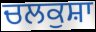
ਚਲਕੁਸ਼ਾ